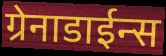
ग्रेनाडाईन्स